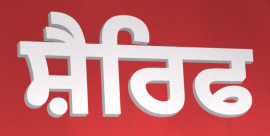
ਸ਼ੈਰਿਫ